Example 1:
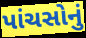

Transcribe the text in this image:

પાંચસોનું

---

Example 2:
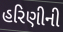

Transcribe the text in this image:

હરિણીની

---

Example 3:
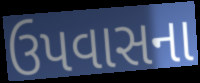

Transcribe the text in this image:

ઉપવાસના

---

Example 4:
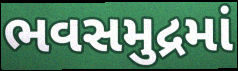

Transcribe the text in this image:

ભવસમુદ્રમાં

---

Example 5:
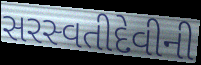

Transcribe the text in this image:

સરસ્વતીદેવીની